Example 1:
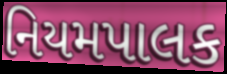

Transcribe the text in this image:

નિયમપાલક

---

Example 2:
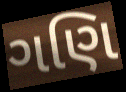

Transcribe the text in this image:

ગણિ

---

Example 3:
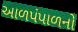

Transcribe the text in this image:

આળપંપાળનો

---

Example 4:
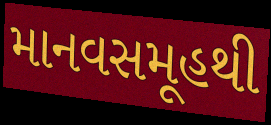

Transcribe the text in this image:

માનવસમૂહથી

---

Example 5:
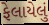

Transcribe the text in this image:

ફેલાયેલું